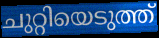
ചുറ്റിയെടുത്ത്